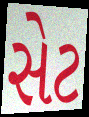
સેટ